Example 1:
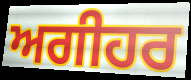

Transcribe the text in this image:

ਅਗੀਹਰ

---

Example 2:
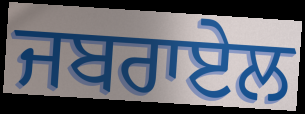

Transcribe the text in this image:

ਜਬਰਾਏਲ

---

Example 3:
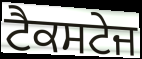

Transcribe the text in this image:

ਟੈਕਸਟੇਜ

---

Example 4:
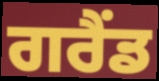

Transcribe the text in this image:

ਗਰੈਂਡ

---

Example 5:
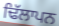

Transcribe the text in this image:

ਢਿੱਲਾਪਨ